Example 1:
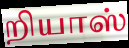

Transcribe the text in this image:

றியாஸ்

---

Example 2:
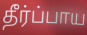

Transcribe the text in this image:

தீர்ப்பாய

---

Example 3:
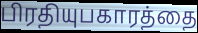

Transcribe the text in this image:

பிரதியுபகாரத்தை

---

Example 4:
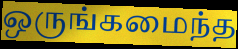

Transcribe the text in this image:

ஒருங்கமைந்த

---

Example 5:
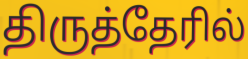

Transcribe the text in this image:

திருத்தேரில்